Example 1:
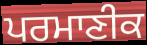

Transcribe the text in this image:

ਪਰਮਾਣੀਕ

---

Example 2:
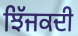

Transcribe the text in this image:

ਝਿੱਜਕਦੀ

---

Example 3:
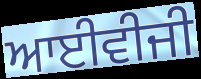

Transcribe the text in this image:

ਆਈਵੀਜੀ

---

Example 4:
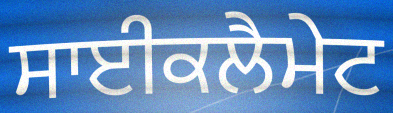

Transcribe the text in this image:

ਸਾਈਕਲੈਮੇਟ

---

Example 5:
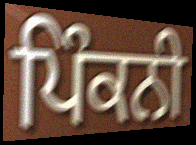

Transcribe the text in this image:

ਪਿੰਕਨੀ